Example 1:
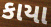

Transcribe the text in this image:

કાયા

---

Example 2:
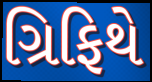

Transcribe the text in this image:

ગ્રિફિથે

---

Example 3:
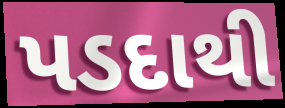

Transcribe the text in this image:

પડદાથી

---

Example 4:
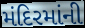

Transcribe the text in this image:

મંદિરમાંની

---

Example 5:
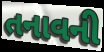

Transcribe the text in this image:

તનાવની